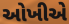
ઓખીએ